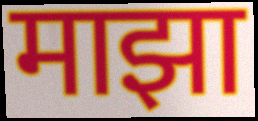
माझा